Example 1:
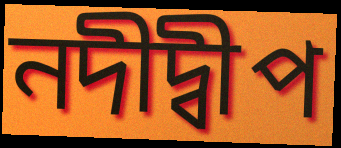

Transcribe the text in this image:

নদীদ্বীপ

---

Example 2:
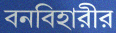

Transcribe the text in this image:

বনবিহারীর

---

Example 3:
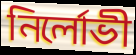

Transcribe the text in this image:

নির্লোভী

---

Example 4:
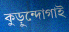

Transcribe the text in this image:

কুড়ুন্দোগাই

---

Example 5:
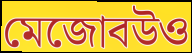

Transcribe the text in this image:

মেজোবউও